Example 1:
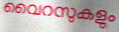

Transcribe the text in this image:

വൈറസുകളും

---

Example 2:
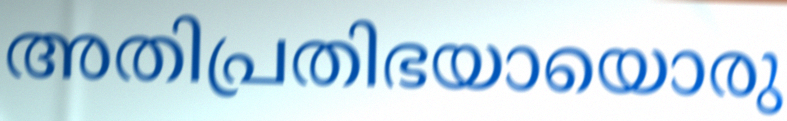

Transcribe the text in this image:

അതിപ്രതിഭയായൊരു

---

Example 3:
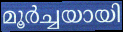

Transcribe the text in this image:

മൂർച്ചയായി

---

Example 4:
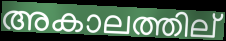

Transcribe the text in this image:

അകാലത്തില്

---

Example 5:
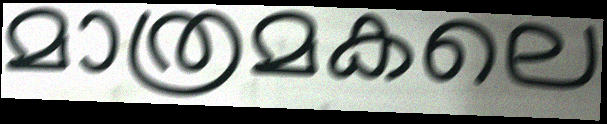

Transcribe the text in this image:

മാത്രമകലെ